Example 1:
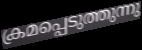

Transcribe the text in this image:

ക്രമപ്പെടുത്തുന്നു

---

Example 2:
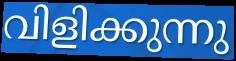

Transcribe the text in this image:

വിളിക്കുന്നു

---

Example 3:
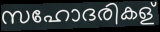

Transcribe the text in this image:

സഹോദരികള്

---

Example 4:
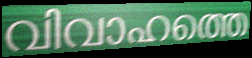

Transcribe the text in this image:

വിവാഹത്തെ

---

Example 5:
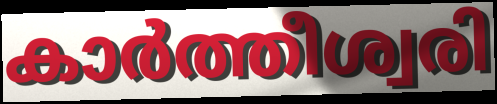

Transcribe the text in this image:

കാർത്തീശ്വരി